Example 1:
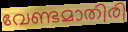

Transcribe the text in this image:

വേണ്ടമാതിരി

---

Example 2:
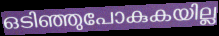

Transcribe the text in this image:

ഒടിഞ്ഞുപോകുകയില്ല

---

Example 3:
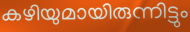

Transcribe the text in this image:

കഴിയുമായിരുന്നിട്ടും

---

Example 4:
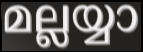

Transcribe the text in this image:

മല്ലയ്യാ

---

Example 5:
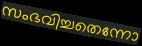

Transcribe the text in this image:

സംഭവിച്ചതെന്നോ